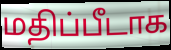
மதிப்பீடாக